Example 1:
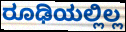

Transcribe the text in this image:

ರೂಢಿಯಲ್ಲಿಲ್ಲ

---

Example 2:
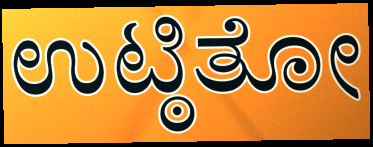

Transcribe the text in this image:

ಉಟ್ಠಿತೋ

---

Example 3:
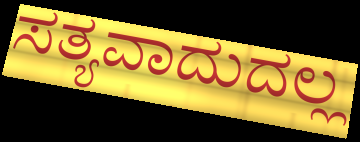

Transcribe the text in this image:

ಸತ್ಯವಾದುದಲ್ಲ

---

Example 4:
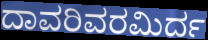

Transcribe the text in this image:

ದಾವರಿವರಮಿರ್ದ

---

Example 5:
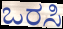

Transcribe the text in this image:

ಒರಸಿ